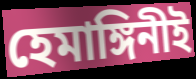
হেমাঙ্গিনীই